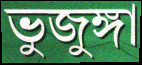
ভুজুঙ্গা